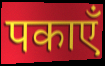
पकाएँ